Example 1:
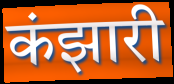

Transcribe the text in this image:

कंझारी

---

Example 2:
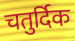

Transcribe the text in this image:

चतुर्दिक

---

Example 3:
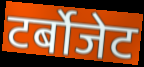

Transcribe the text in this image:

टर्बोजेट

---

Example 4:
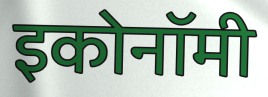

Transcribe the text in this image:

इकोनॉमी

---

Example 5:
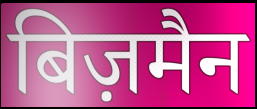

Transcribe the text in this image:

बिज़मैन